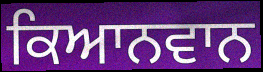
ਕਿਆਨਵਾਨ